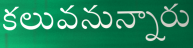
కలువనున్నారు